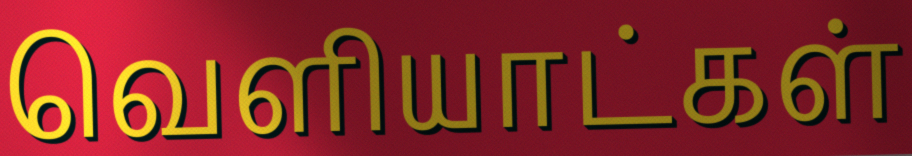
வெளியாட்கள்